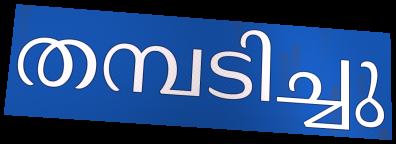
തമ്പടിച്ചു